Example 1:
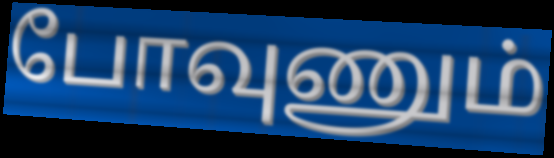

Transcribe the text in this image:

போவுணும்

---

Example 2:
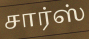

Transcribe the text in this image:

சார்ஸ்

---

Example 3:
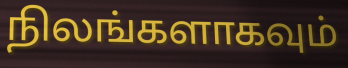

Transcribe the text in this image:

நிலங்களாகவும்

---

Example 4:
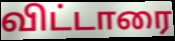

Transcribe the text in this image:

விட்டாரை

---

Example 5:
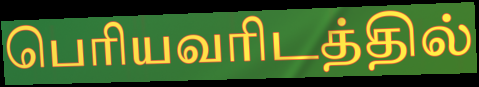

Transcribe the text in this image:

பெரியவரிடத்தில்